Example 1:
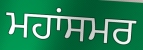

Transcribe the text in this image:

ਮਹਾਂਸਮਰ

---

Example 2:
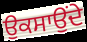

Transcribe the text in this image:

ਉਕਸਾਉਂਦੇ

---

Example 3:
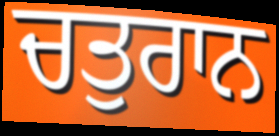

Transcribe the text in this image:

ਚਤੁਰਾਨ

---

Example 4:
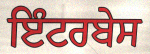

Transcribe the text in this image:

ਇੰਟਰਬੇਸ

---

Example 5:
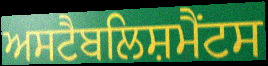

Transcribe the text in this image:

ਅਸਟੈਬਲਿਸ਼ਮੈਂਟਸ